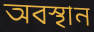
অবস্থান